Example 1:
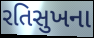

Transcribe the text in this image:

રતિસુખના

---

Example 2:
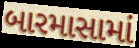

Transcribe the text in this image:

બારમાસામાં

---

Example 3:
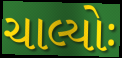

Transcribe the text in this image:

ચાલ્યોઃ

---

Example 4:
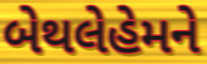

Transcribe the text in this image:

બેથલેહેમને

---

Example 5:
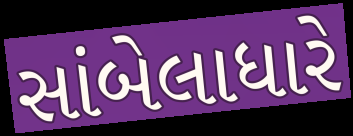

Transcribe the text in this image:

સાંબેલાધારે